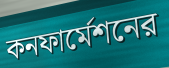
কনফার্মেশনের